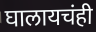
घालायचंही